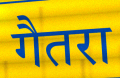
गैतरा